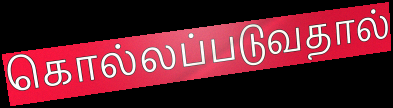
கொல்லப்படுவதால்